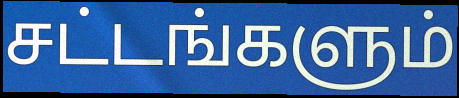
சட்டங்களும்